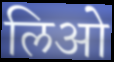
लिओ